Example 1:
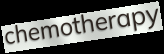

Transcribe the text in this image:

chemotherapy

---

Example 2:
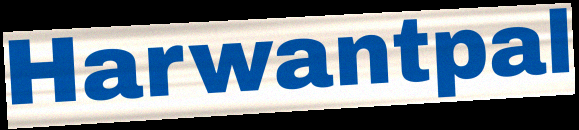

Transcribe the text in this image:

Harwantpal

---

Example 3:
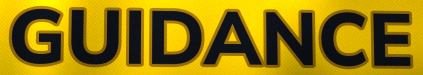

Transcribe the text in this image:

GUIDANCE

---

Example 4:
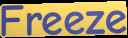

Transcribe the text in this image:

Freeze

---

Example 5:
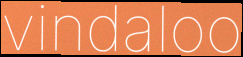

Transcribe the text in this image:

vindaloo